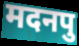
मदनपु